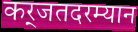
कर्जतदरम्यान